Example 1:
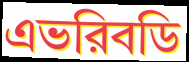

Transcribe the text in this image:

এভরিবডি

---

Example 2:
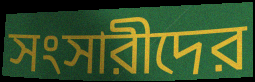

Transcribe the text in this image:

সংসারীদের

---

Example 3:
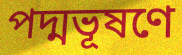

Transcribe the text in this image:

পদ্মভূষণে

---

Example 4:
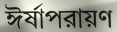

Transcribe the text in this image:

ঈর্ষাপরায়ণ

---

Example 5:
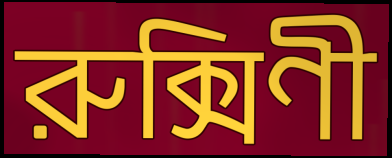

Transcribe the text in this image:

রুক্সিণী